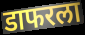
डाफरला